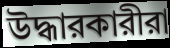
উদ্ধারকারীরা